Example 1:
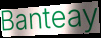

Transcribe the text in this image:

Banteay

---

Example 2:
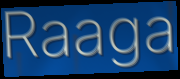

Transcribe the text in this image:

Raaga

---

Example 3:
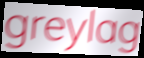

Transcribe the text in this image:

greylag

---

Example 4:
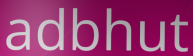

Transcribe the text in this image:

adbhut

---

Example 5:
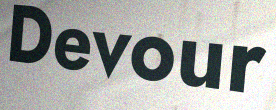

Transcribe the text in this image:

Devour